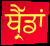
ਥ੍ਰੈੱਡਾਂ